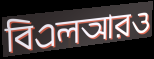
বিএলআরও